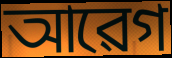
আৱেগ